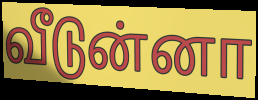
வீடுன்னா